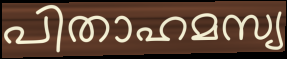
പിതാഹമസ്യ